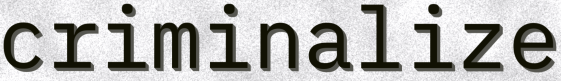
criminalize